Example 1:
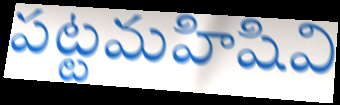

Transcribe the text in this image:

పట్టమహిషివి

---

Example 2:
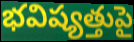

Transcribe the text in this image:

భవిష్యత్తుపై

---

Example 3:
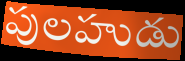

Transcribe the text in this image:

పులహుడు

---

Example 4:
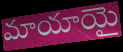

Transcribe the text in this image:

మాయాయై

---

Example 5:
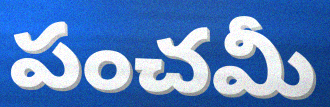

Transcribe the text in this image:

పంచమీ